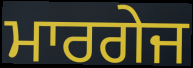
ਮਾਰਗੇਜ